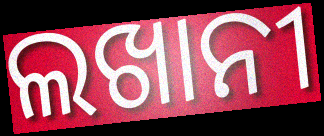
ଲଖାନୀ